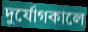
দুর্যোগকালে